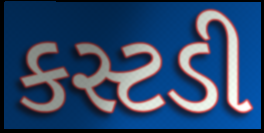
કસ્ટડી